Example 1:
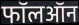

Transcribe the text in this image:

फॉलऑन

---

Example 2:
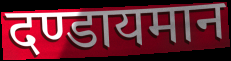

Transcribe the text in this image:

दण्डायमान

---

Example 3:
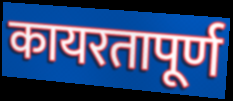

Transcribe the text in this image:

कायरतापूर्ण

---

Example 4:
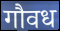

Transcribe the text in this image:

गौवध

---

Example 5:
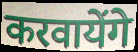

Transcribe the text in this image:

करवायेंगे